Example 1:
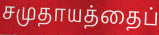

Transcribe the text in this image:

சமுதாயத்தைப்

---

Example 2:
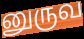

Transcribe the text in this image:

னுருவ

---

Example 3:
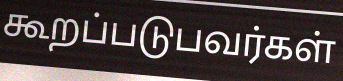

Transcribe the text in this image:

கூறப்படுபவர்கள்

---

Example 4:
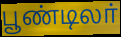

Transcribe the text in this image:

பூண்டிலர்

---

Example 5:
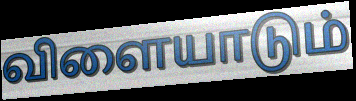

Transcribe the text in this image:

விளையாடும்